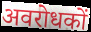
अवरोधकों